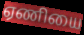
ஏணியை